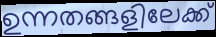
ഉന്നതങ്ങളിലേക്ക്